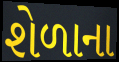
શેળાના